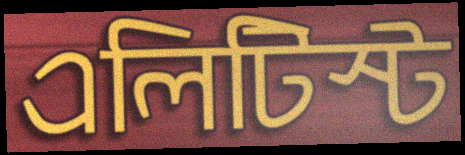
এলিটিস্ট